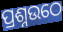
ପ୍ରଶ୍ନଉଠେ